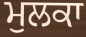
ਮੁਲਕਾ